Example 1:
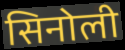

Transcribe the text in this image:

सिनोली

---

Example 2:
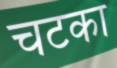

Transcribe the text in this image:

चटका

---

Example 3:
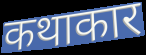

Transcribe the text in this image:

कथाकार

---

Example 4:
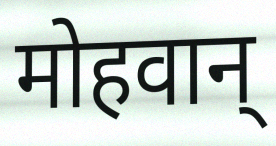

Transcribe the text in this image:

मोहवान्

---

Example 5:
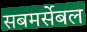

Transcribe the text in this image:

सबमर्सेबल